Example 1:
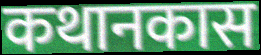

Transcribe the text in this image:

कथानकास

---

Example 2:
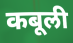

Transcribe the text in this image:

कबूली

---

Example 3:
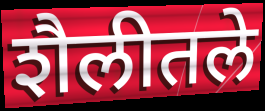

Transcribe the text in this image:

शैलीतले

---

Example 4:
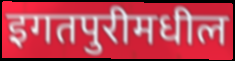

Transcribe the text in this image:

इगतपुरीमधील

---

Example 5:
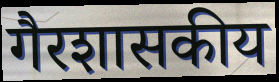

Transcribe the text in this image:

गैरशासकीय